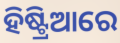
ହିଷ୍ଟ୍ରିଆରେ